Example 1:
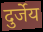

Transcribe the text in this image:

दुर्जेय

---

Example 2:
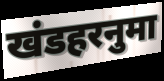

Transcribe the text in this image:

खंडहरनुमा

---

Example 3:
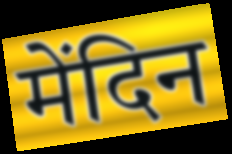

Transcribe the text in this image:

मेंदिन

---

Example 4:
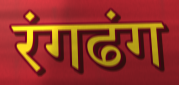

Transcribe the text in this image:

रंगढंग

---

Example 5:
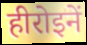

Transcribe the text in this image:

हीरोइनें